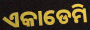
ଏକାଡେମି